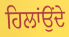
ਹਿਲਾਂਉਂਦੇ